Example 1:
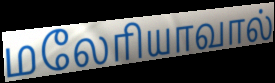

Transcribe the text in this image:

மலேரியாவால்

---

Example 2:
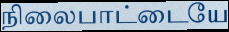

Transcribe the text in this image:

நிலைபாட்டையே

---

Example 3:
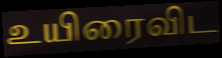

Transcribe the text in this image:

உயிரைவிட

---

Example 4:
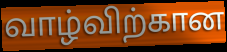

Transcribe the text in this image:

வாழ்விற்கான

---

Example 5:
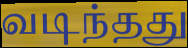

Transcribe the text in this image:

வடிந்தது